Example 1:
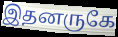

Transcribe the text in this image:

இதனருகே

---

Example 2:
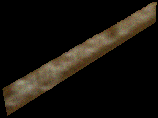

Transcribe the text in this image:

அருளடையாள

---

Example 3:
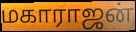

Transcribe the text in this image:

மகாராஜன்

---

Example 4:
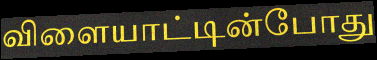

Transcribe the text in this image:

விளையாட்டின்போது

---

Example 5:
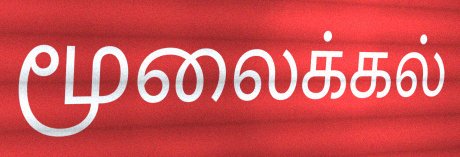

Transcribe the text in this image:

மூலைக்கல்